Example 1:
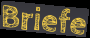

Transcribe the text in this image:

Briefe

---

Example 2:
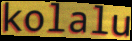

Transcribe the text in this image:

kolalu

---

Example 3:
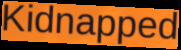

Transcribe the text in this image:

Kidnapped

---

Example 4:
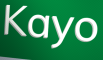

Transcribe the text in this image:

Kayo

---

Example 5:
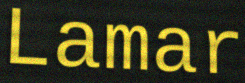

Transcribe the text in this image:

Lamar